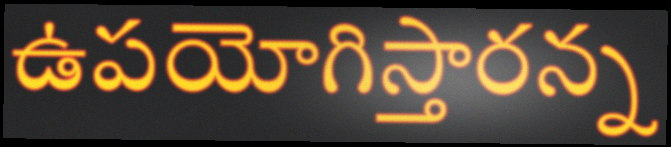
ఉపయోగిస్తారన్న